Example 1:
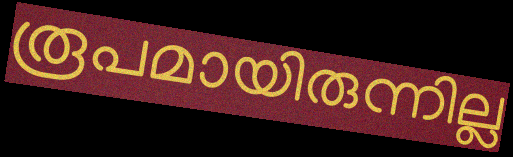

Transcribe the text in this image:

രൂപമായിരുന്നില്ല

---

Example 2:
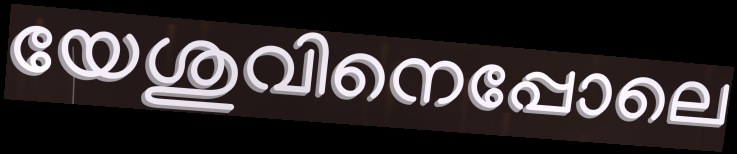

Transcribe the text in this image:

യേശുവിനെപ്പോലെ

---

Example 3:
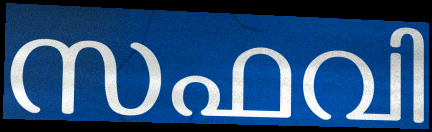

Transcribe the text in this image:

സഫവി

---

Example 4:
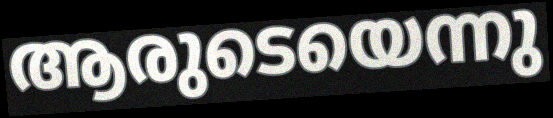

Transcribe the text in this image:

ആരുടെയെന്നു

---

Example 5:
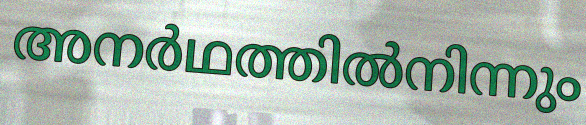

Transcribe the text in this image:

അനർഥത്തിൽനിന്നും